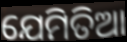
ଯେମିତିଆ